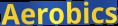
Aerobics